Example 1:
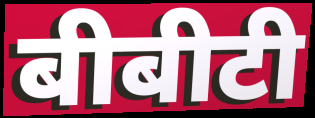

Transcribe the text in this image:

बीबीटी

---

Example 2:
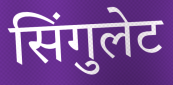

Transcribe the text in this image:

सिंगुलेट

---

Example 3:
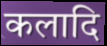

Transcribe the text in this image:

कलादि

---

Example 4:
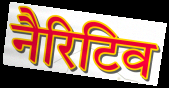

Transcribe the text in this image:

नैरिटिव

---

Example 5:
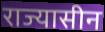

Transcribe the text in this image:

राज्यासीन